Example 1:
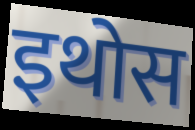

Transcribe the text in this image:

इथोस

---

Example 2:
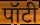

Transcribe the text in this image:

पॉटी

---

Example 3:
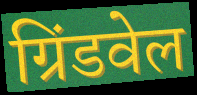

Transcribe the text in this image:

ग्रिंडवेल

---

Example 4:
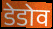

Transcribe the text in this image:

डेडोव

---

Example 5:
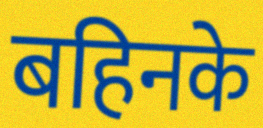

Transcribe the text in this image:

बहिनके